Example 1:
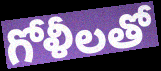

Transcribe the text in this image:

గోళీలతో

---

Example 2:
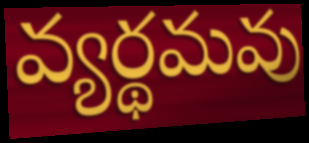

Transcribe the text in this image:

వ్యర్థమవు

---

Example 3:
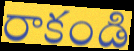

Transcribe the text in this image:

రాకండి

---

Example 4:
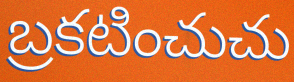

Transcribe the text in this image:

బ్రకటించుచు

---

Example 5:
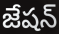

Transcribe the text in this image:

జేషన్